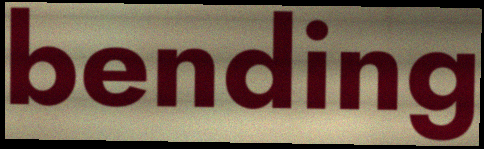
bending